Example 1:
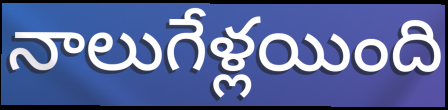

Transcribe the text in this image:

నాలుగేళ్లయింది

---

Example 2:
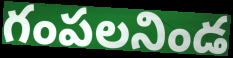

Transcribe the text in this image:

గంపలనిండ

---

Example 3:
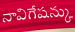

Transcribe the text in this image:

నావిగేషన్కు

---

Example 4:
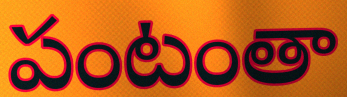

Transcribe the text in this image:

పంటంతా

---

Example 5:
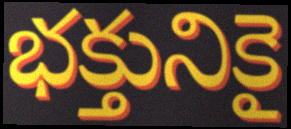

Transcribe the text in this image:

భక్తునికై